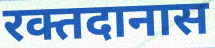
रक्तदानास